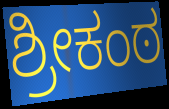
ಶ್ರೀಕಂಠ